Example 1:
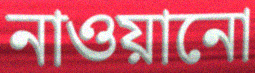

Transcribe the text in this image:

নাওয়ানো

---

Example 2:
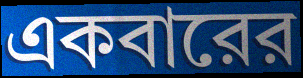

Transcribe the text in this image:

একবারের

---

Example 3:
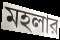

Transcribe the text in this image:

মহলার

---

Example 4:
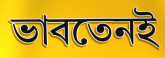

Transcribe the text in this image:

ভাবতেনই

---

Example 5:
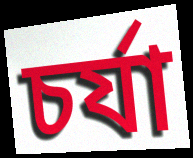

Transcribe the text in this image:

চর্যা